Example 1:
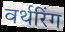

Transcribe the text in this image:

वर्थरिंग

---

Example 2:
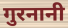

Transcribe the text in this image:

गुरनानी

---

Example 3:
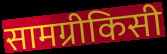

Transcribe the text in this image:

सामग्रीकिसी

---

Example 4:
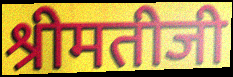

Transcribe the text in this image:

श्रीमतीजी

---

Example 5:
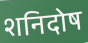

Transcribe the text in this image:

शनिदोष